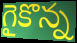
గైకొన్న